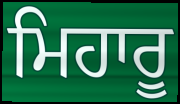
ਮਿਹਾਰੂ